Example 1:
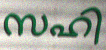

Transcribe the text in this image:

സഹി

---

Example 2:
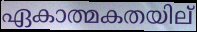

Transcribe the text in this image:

ഏകാത്മകതയില്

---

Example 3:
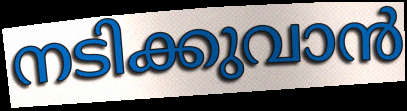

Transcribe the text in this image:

നടിക്കുവാൻ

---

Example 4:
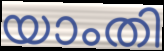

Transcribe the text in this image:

യാംതി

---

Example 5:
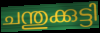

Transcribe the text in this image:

ചന്തുക്കുട്ടി